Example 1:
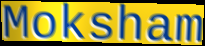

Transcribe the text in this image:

Moksham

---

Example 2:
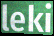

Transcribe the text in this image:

leki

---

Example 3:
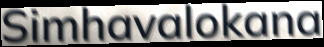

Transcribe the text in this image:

Simhavalokana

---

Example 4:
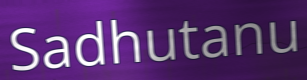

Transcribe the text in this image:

Sadhutanu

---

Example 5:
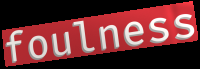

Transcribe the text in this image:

foulness